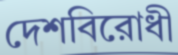
দেশবিরোধী